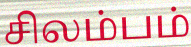
சிலம்பம்